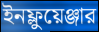
ইনফ্লুয়েঞ্জার